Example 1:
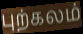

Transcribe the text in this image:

புற்கலம்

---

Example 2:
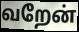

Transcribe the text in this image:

வறேன்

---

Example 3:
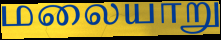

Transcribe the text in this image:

மலையாறு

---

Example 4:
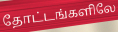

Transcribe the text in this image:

தோட்டங்களிலே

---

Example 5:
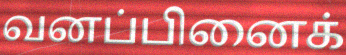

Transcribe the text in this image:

வனப்பினைக்